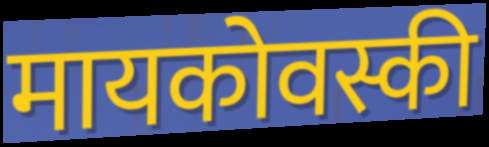
मायकोवस्की